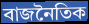
বাজনৈতিক